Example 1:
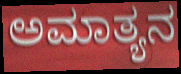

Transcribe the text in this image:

ಅಮಾತ್ಯನ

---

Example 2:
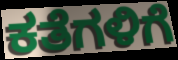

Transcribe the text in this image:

ಕತೆಗಳಿಗೆ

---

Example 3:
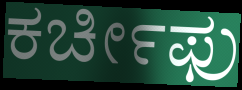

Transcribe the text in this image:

ಕರ್ಚೀಫು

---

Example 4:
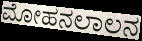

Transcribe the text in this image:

ಮೋಹನಲಾಲನ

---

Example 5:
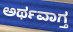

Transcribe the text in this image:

ಅರ್ಥವಾಗ್ತ